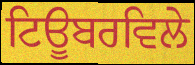
ਟਿਊਬਰਵਿਲੇ